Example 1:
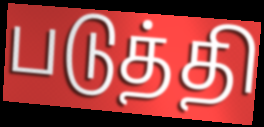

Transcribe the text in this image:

படுத்தி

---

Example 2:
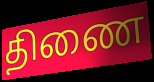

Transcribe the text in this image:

திணை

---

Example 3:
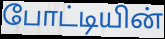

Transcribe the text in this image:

போட்டியின்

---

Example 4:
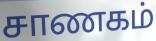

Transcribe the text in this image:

சாணகம்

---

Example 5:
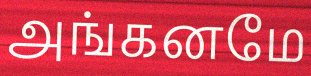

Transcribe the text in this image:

அங்கனமே